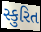
સ્કુરિત